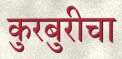
कुरबुरीचा